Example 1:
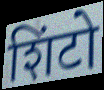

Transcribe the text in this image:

शिंटो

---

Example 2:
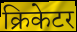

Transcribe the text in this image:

क्रिकेटर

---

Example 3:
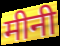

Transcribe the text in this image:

मीनी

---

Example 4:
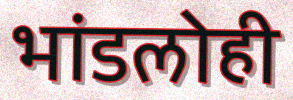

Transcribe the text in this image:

भांडलोही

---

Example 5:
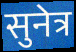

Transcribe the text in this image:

सुनेत्र